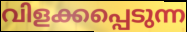
വിളക്കപ്പെടുന്ന